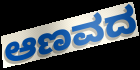
ಆಣವದ